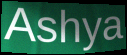
Ashya